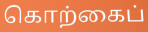
கொற்கைப்